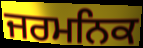
ਜਰਮਨਿਕ